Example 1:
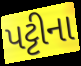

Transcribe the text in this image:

પટ્ટીના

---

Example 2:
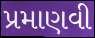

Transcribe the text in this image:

પ્રમાણવી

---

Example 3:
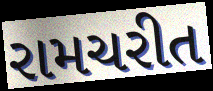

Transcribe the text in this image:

રામચરીત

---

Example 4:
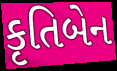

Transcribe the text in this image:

કૃતિબેન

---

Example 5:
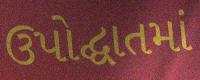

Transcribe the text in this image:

ઉપોદ્ઘાતમાં